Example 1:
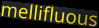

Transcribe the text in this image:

mellifluous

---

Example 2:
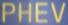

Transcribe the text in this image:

PHEV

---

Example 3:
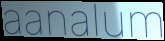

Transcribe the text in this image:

aanalum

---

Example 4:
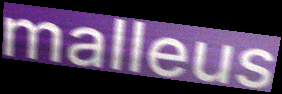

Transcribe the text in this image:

malleus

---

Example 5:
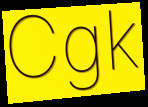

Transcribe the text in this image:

Cgk